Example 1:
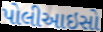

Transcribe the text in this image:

પોલીઆઇસો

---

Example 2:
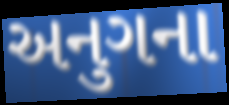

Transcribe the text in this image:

અનુગના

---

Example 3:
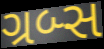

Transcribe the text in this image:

ગ્રબ્સ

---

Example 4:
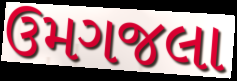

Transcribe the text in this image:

ઉમગજલા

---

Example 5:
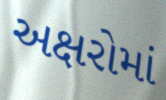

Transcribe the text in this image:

અક્ષરોમાં